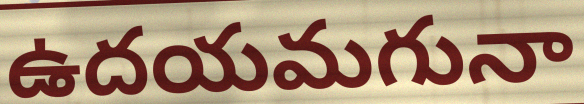
ఉదయమగునా